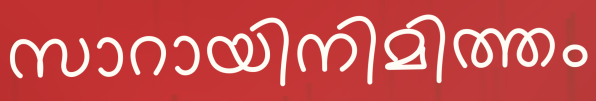
സാറായിനിമിത്തം